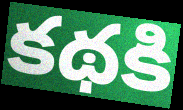
కథకి